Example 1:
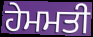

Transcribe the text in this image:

ਹੇਮਮਤੀ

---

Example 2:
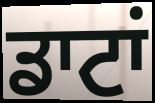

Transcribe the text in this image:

ਡਾਟਾਂ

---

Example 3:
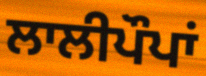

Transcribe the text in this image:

ਲਾਲੀਪੌਪਾਂ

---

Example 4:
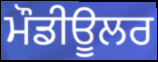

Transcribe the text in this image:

ਮੌਡੀਊਲਰ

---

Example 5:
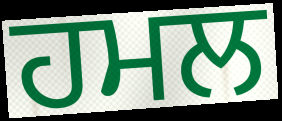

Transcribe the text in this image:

ਹਮਲ